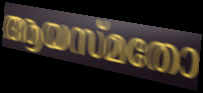
ആയസ്മതോ